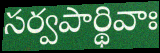
సర్వపార్థివాః